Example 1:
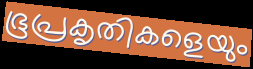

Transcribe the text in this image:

ഭൂപ്രകൃതികളെയും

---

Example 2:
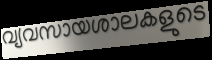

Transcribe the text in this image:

വ്യവസായശാലകളുടെ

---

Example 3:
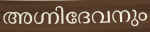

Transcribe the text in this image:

അഗ്നിദേവനും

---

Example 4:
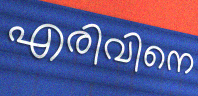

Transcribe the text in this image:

എരിവിനെ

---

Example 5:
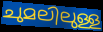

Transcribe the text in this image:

ചുമലിലുള്ള